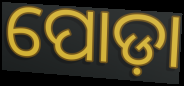
ପୋଡ଼ା